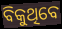
ବିକୁଥିବେ